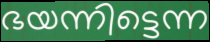
ഭയന്നിട്ടെന്ന